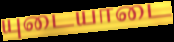
யுடையாடை